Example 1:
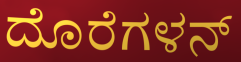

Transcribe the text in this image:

ದೊರೆಗಳನ್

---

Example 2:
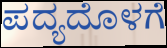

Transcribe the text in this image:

ಪದ್ಯದೊಳಗೆ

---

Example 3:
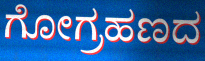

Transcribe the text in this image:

ಗೋಗ್ರಹಣದ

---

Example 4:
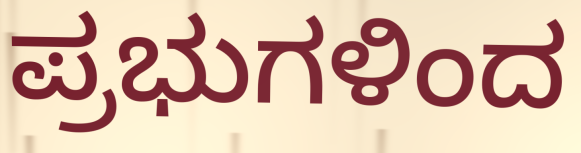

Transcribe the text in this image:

ಪ್ರಭುಗಳಿಂದ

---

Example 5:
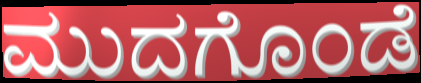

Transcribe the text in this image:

ಮುದಗೊಂಡೆ